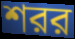
শরর